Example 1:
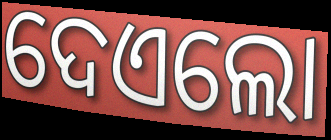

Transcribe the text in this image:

ଦେଏଲୋ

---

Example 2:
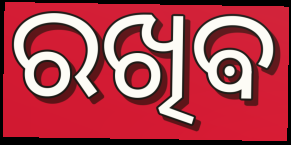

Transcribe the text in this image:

ରଖିଵ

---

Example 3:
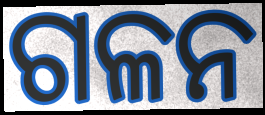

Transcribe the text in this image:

ଗଳନ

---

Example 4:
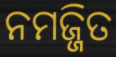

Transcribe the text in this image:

ନମଜ୍ଜିତ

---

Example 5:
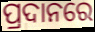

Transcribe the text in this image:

ପ୍ରଦାନରେ